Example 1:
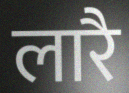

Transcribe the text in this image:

लारै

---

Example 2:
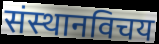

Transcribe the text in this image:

संस्थानविचय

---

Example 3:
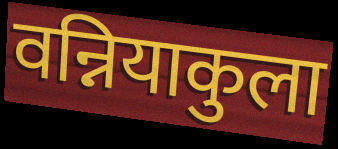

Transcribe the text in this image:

वन्नियाकुला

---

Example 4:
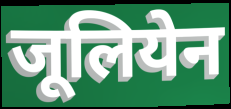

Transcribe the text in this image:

जूलियेन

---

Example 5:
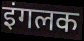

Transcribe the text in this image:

इंगलक